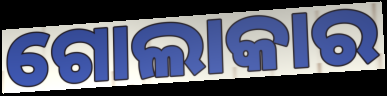
ଗୋଲାକାର